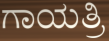
ಗಾಯತ್ರಿ